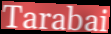
Tarabai